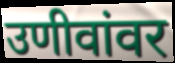
उणीवांवर